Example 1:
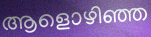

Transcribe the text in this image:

ആളൊഴിഞ്ഞ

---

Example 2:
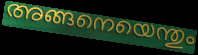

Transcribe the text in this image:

അങ്ങനെയെന്തും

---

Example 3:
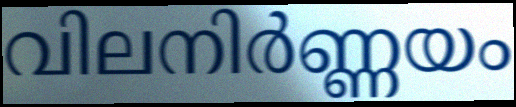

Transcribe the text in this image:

വിലനിർണ്ണയം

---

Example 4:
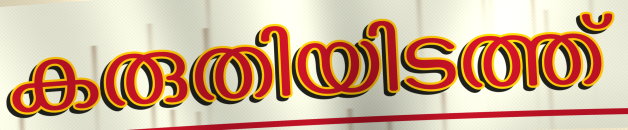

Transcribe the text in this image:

കരുതിയിടത്ത്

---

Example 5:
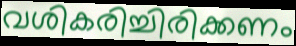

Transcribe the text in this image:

വശികരിച്ചിരിക്കണം